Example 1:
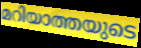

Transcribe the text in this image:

മറിയാത്തയുടെ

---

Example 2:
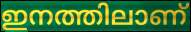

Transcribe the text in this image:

ഇനത്തിലാണ്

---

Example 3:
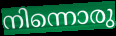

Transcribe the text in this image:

നിന്നൊരു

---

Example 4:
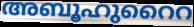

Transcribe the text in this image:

അബൂഹുറൈറ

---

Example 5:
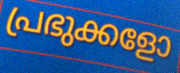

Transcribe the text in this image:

പ്രഭുക്കളോ